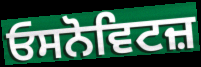
ਓਸਨੋਵਿਟਜ਼